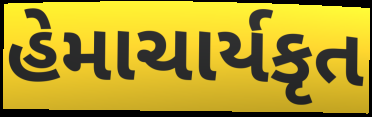
હેમાચાર્યકૃત